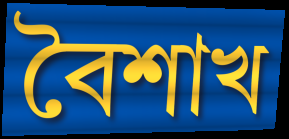
বৈশাখ